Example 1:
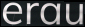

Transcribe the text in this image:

erau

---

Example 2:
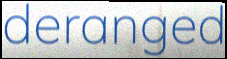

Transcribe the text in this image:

deranged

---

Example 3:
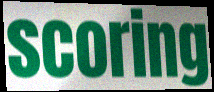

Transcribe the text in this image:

scoring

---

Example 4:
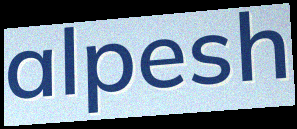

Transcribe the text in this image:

alpesh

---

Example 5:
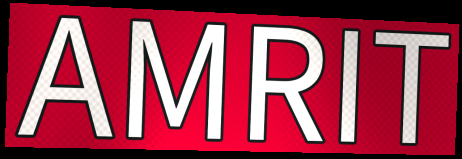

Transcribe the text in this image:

AMRIT